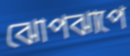
ঝোপঝাপে